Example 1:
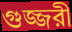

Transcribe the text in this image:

গুজ্জরী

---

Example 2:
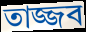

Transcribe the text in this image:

তাজ্জব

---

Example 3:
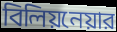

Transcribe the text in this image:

বিলিয়নেয়ার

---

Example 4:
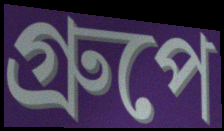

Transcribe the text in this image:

গ্রুপে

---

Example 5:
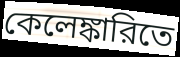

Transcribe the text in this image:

কেলেঙ্কারিতে